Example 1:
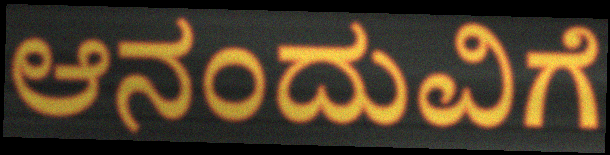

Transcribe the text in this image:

ಆನಂದುವಿಗೆ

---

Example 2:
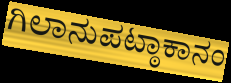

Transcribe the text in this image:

ಗಿಲಾನುಪಟ್ಠಾಕಾನಂ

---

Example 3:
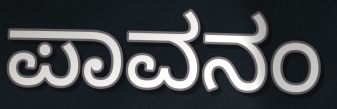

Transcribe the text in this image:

ಪಾವನಂ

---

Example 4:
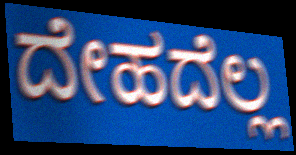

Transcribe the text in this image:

ದೇಹದೆಲ್ಲ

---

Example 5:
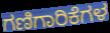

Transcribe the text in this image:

ಗಣಿಗಾರಿಕೆಗಳ